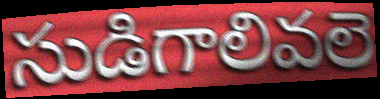
సుడిగాలివలె